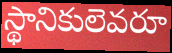
స్థానికులెవరూ